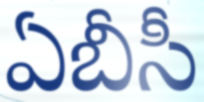
ఏబీసీ